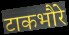
टाकभौरे